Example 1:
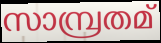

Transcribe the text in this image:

സാമ്പ്രതമ്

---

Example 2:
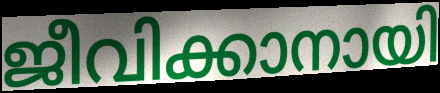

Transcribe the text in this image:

ജീവിക്കാനായി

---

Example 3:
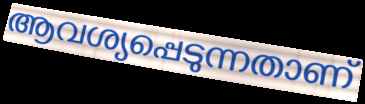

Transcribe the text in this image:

ആവശ്യപ്പെടുന്നതാണ്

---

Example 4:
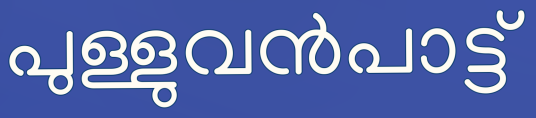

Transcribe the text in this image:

പുള്ളുവൻപാട്ട്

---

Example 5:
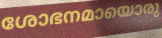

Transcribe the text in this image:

ശോഭനമായൊരു